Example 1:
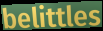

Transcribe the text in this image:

belittles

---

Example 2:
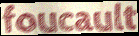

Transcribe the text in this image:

foucault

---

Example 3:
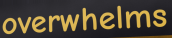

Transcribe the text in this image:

overwhelms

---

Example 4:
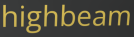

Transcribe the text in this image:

highbeam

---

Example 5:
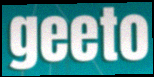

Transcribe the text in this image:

geeto